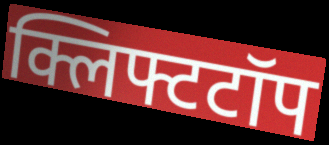
क्लिफ्टटॉप